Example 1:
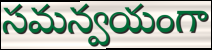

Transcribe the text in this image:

సమన్వయంగా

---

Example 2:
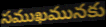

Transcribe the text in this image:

సముఖమునకు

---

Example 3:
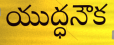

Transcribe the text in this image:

యుద్ధనౌక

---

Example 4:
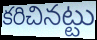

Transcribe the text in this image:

కరిచినట్టు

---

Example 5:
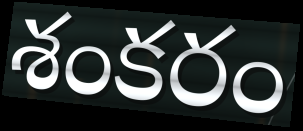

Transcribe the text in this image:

శంకరం